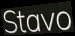
Stavo